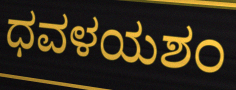
ಧವಳಯಶಂ